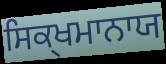
ਸਿਕ੍ਖਮਾਨਾਯ